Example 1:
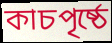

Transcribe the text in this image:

কাচপৃষ্ঠে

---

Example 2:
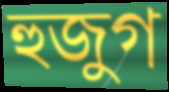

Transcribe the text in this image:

হুজুগ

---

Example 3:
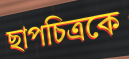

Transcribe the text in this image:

ছাপচিত্রকে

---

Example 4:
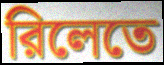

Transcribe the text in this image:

রিলেতে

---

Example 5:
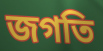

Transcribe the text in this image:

জগতি